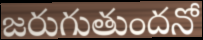
జరుగుతుందనో